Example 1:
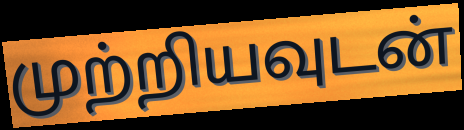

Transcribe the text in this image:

முற்றியவுடன்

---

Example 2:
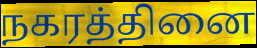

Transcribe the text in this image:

நகரத்தினை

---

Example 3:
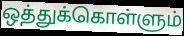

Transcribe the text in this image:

ஒத்துக்கொள்ளும்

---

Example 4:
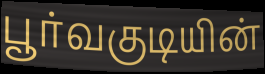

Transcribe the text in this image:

பூர்வகுடியின்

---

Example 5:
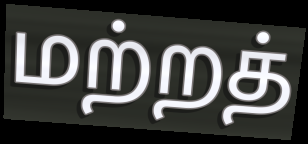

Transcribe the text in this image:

மற்றத்